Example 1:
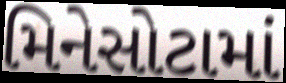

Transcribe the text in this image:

મિનેસોટામાં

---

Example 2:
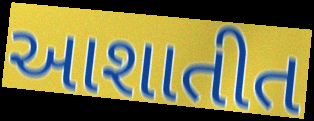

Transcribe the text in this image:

આશાતીત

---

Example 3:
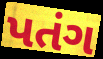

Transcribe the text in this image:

પતંગ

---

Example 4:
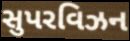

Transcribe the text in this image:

સુપરવિઝન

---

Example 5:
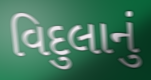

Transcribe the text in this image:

વિદુલાનું